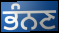
ਭੰਨਣ